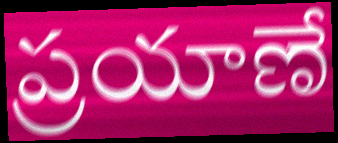
ప్రయాణే